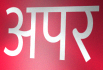
अपर